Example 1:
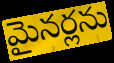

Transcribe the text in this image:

మైనర్లను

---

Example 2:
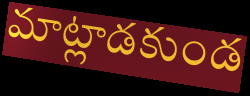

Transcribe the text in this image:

మాట్లాడకుండ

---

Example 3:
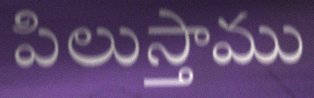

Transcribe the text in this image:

పిలుస్తాము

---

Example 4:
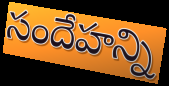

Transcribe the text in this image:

సందేహన్ని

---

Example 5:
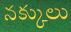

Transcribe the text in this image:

నక్కులు